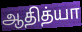
ஆதித்யா